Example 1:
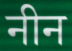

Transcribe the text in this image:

नीन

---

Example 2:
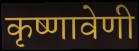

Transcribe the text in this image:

कृष्णावेणी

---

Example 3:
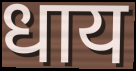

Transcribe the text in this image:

धाय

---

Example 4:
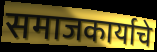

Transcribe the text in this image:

समाजकार्याचे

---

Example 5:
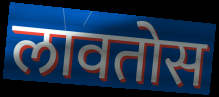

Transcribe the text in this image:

लावतोस